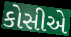
કોસીએ